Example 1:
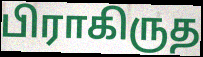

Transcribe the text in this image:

பிராகிருத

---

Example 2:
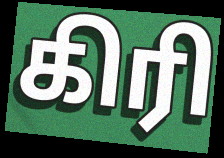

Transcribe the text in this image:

கிரி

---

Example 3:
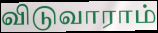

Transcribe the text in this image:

விடுவாராம்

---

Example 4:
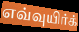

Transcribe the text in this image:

எவ்வுயிர்க்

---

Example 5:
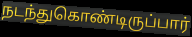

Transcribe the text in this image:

நடந்துகொண்டிருப்பார்